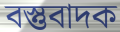
বস্তুবাদক